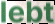
lebt